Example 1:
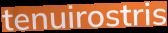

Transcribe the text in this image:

tenuirostris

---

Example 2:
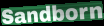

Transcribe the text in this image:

Sandborn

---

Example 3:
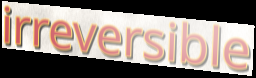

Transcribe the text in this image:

irreversible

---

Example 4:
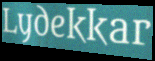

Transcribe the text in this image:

Lydekkar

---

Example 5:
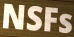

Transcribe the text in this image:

NSFs